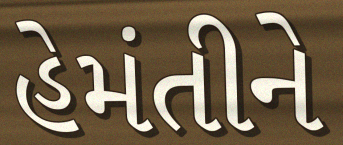
હેમંતીને